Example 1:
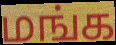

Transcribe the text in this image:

மங்க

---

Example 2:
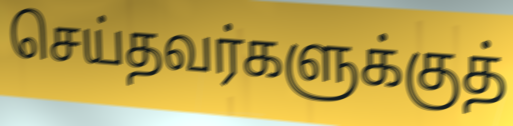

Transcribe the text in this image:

செய்தவர்களுக்குத்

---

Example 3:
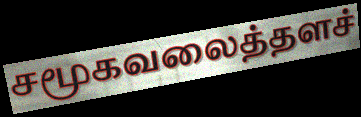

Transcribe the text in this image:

சமூகவலைத்தளச்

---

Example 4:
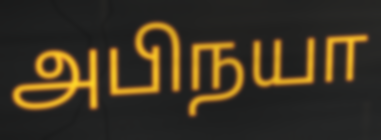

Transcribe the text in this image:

அபிநயா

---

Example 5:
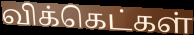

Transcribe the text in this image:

விக்கெட்கள்